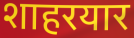
शाहरयार